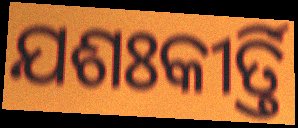
ଯଶଃକୀର୍ତ୍ତି